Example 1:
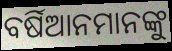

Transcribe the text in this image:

ବର୍ଷିଆନମାନଙ୍କୁ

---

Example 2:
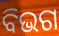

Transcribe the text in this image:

ବିଭଗ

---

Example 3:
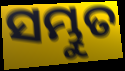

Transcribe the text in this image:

ସମ୍ଭୁତ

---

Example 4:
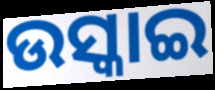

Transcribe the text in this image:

ଉସ୍କାଇ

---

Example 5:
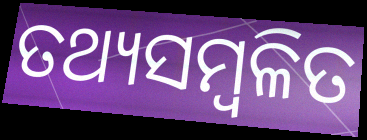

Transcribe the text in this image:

ତଥ୍ୟସମ୍ୱଳିତ